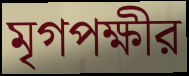
মৃগপক্ষীর